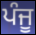
ਪੰਜੂ